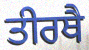
ਤੀਰਥੈ